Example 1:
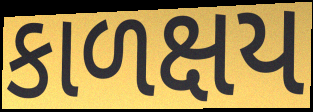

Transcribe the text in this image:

કાળક્ષય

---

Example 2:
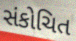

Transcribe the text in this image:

સંકોચિત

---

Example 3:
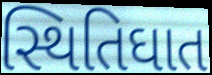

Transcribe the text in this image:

સ્થિતિઘાત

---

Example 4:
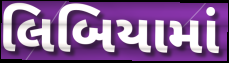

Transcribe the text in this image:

લિબિયામાં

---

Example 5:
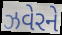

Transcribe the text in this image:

ઝવેરને